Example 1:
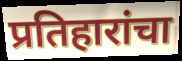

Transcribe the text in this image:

प्रतिहारांचा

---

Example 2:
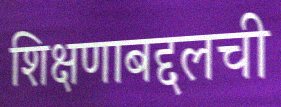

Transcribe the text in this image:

शिक्षणाबद्दलची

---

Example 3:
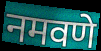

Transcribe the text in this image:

नमवणे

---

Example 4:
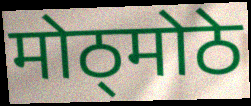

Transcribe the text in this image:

मोठ्मोठे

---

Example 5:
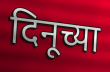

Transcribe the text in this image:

दिनूच्या